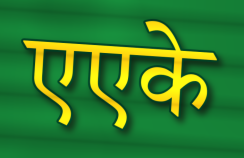
एएके